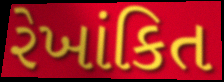
રેખાંકિત